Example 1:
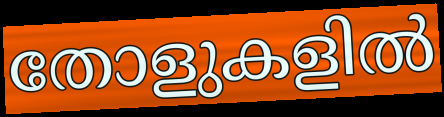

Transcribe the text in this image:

തോളുകളിൽ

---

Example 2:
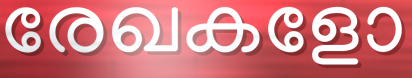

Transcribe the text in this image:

രേഖകളോ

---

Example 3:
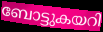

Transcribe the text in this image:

ബോട്ടുകയറി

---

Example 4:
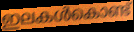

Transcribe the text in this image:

ഇലകൾകൊണ്ട്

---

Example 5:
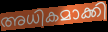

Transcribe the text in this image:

അധികമാക്കി